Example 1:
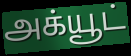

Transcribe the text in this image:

அக்யூட்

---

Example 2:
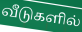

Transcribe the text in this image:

வீடுகளில்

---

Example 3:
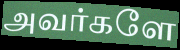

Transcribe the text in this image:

அவர்களே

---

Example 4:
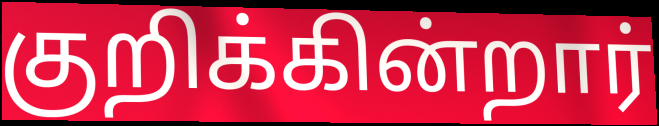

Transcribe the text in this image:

குறிக்கின்றார்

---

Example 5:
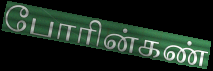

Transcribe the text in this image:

போரின்கண்